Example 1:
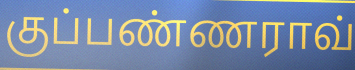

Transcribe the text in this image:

குப்பண்ணராவ்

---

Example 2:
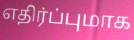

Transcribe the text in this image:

எதிர்ப்புமாக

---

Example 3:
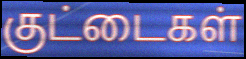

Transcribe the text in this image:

குட்டைகள்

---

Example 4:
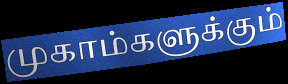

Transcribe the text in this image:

முகாம்களுக்கும்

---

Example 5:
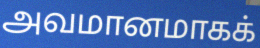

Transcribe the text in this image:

அவமானமாகக்